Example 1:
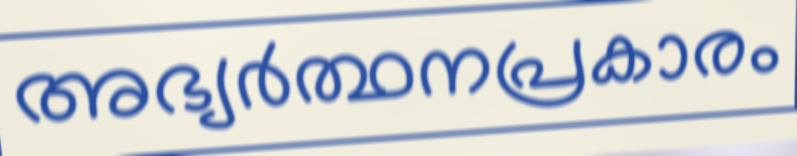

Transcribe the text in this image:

അഭ്യർത്ഥനപ്രകാരം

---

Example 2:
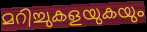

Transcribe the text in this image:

മറിച്ചുകളയുകയും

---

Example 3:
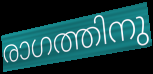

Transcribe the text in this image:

രാഗത്തിനു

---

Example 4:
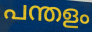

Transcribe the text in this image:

പന്തളം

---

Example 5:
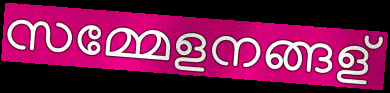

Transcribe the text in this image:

സമ്മേളനങ്ങള്